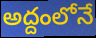
అద్దంలోనే